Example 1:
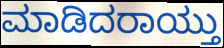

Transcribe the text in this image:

ಮಾಡಿದರಾಯ್ತು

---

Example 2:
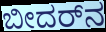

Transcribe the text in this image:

ಬೀದರ್‌ನ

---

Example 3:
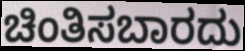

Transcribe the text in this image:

ಚಿಂತಿಸಬಾರದು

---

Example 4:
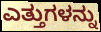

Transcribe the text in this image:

ಎತ್ತುಗಳನ್ನು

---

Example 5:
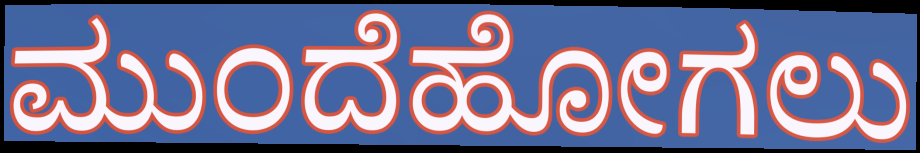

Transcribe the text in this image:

ಮುಂದೆಹೋಗಲು